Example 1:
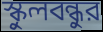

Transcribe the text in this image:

স্কুলবন্ধুর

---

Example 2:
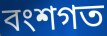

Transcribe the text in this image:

বংশগত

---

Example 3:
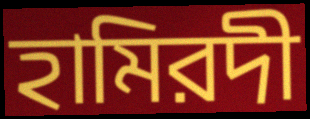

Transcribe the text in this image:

হামিরদী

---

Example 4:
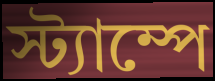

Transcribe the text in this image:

স্ট্যাম্পে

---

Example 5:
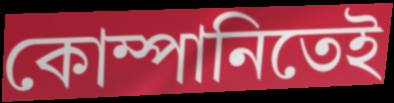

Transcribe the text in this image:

কোম্পানিতেই